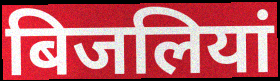
बिजलियां